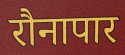
रौनापार